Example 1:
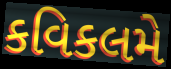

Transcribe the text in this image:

કવિકલમે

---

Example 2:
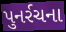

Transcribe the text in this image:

પુનર્રચના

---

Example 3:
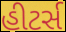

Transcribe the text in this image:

હીટર્સ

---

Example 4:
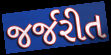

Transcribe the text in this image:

જર્જરીત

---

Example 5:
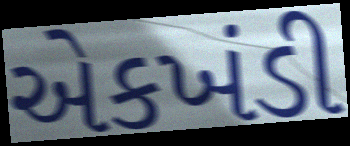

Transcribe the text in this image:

એકખંડી